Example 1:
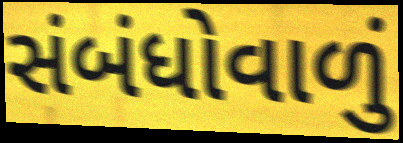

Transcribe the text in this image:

સંબંધોવાળું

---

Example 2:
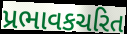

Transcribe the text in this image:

પ્રભાવકચરિત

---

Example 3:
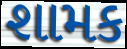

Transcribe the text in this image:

શામક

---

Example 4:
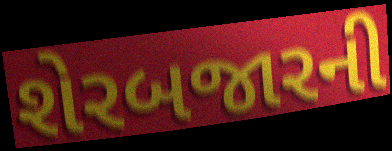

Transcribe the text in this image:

શેરબજારની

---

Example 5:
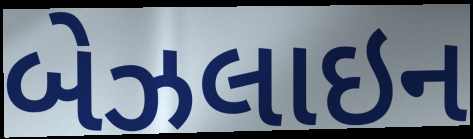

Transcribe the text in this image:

બેઝલાઇન